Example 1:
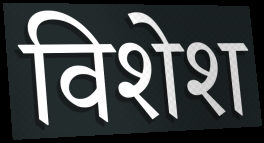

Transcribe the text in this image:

विशेश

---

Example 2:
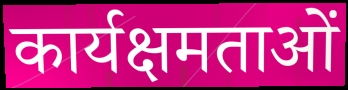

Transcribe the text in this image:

कार्यक्षमताओं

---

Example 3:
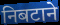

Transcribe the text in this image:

निबटाने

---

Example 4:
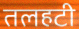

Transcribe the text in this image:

तलहटी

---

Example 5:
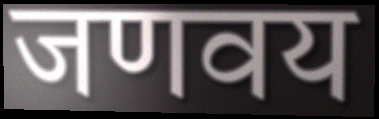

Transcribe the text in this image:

जणवय